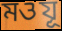
মওযূ